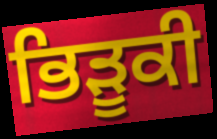
ਭਿੜੂਕੀ